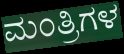
ಮಂತ್ರಿಗಳ